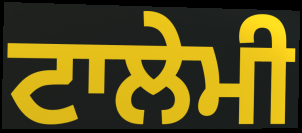
ਟਾਲੇਮੀ